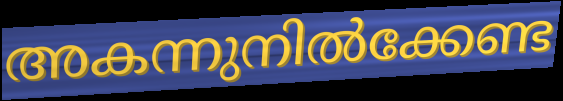
അകന്നുനിൽക്കേണ്ട